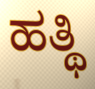
ಹತ್ಥಿ